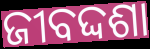
ଜୀବଦ୍ଦଶା